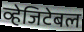
व्हेजिटेबल